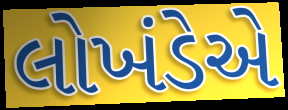
લોખંડેએ